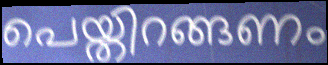
പെയ്തിറങ്ങണം